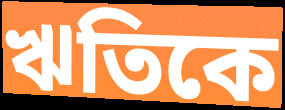
ঋতিকে